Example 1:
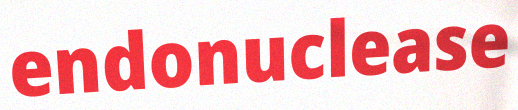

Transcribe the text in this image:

endonuclease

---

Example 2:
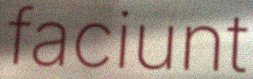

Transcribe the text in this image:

faciunt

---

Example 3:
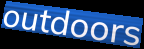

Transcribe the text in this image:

outdoors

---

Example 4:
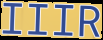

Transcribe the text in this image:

IIIR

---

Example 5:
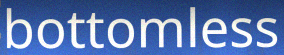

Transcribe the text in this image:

bottomless